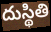
దుస్థితి